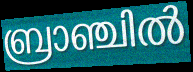
ബ്രാഞ്ചിൽ